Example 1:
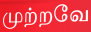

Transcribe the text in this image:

முற்றவே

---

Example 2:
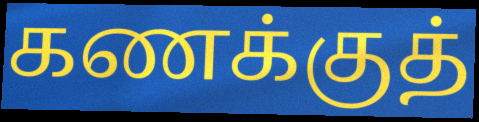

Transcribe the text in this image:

கணக்குத்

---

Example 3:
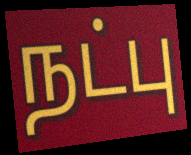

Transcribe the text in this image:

நட்பு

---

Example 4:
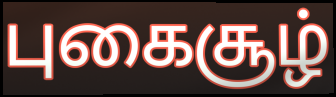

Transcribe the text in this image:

புகைசூழ்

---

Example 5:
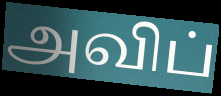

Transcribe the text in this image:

அவிப்